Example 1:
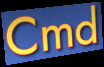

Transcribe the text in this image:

Cmd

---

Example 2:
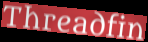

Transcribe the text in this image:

Threadfin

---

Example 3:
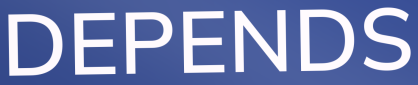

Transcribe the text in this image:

DEPENDS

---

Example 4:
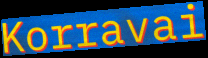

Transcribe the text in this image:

Korravai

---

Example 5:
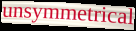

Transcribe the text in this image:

unsymmetrical